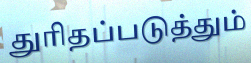
துரிதப்படுத்தும்